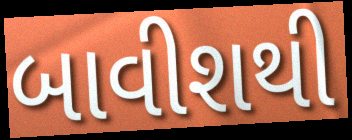
બાવીશથી